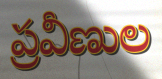
ప్రవీణుల